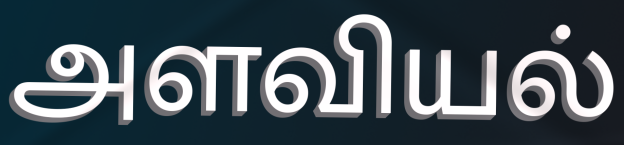
அளவியல்